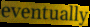
eventually